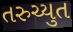
તરુચ્યુત